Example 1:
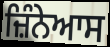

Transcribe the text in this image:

ਜ਼ਿੰਨੇਆਸ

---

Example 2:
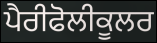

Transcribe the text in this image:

ਪੈਰੀਫੋਲੀਕੂਲਰ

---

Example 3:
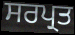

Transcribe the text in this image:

ਸਰਪ੍ਰਤ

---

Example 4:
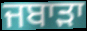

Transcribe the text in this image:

ਜਬਾੜਾ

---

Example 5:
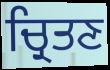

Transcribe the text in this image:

ਚ੍ਰਿਤਣ